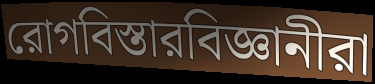
রোগবিস্তারবিজ্ঞানীরা